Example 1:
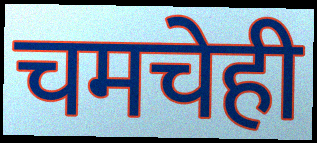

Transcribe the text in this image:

चमचेही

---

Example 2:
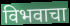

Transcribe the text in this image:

विभवाचा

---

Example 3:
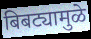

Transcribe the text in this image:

बिबट्यामुळे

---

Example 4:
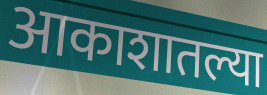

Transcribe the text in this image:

आकाशातल्या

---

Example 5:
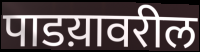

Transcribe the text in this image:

पाडय़ावरील